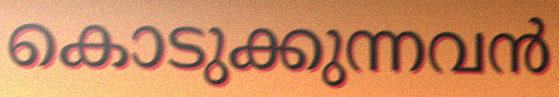
കൊടുക്കുന്നവൻ